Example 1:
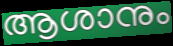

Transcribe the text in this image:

ആശാനും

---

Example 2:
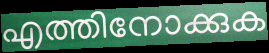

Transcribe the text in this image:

എത്തിനോക്കുക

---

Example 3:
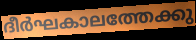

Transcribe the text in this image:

ദീർഘകാലത്തേക്കു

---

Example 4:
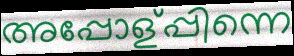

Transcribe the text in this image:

അപ്പോള്പ്പിന്നെ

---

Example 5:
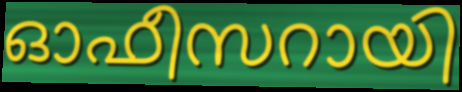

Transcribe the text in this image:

ഓഫീസറായി